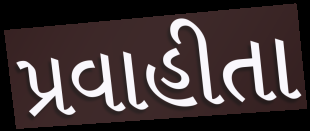
પ્રવાહીતા